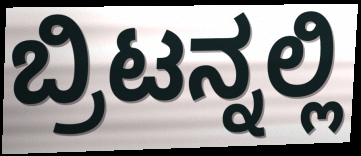
ಬ್ರಿಟನ್ನಲ್ಲಿ